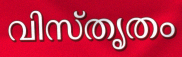
വിസ്തൃതം